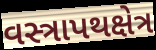
વસ્ત્રાપથક્ષેત્ર